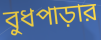
বুধপাড়ার